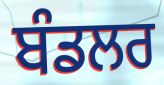
ਬੰਡਲਰ